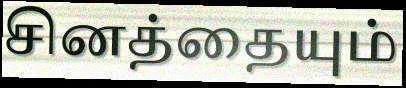
சினத்தையும்